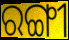
ରଙ୍ଗୀ